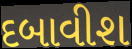
દબાવીશ